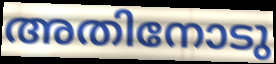
അതിനോടു